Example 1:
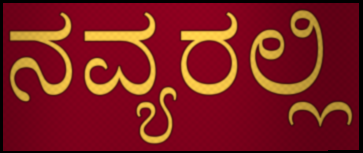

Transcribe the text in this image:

ನವ್ಯರಲ್ಲಿ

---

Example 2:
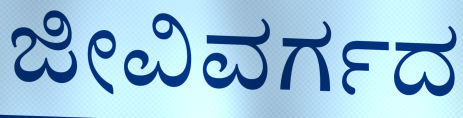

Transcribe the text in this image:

ಜೀವಿವರ್ಗದ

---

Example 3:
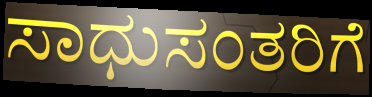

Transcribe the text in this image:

ಸಾಧುಸಂತರಿಗೆ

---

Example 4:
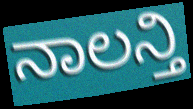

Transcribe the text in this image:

ನಾಲನ್ತಿ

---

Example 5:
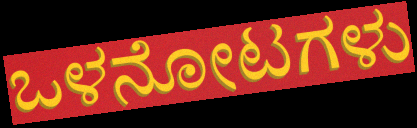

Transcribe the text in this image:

ಒಳನೋಟಗಳು